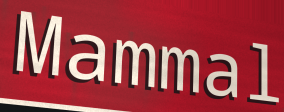
Mammal